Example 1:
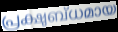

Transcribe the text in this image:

പ്രക്ഷുബ്ധമായ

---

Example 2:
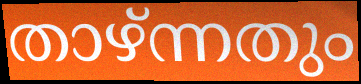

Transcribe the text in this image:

താഴ്ന്നതും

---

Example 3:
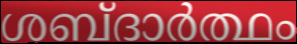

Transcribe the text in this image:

ശബ്ദാർത്ഥം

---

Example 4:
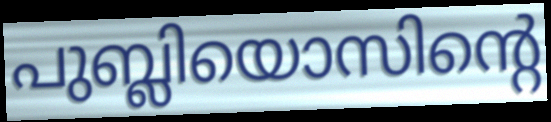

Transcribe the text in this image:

പുബ്ലിയൊസിന്റെ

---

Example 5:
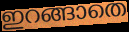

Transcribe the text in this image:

ഇറങ്ങാതെ